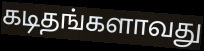
கடிதங்களாவது